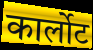
कार्लोट